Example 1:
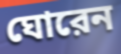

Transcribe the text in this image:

ঘোরেন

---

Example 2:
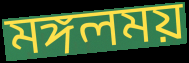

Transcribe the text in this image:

মঙ্গলময়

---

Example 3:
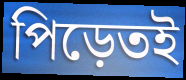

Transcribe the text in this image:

পিড়েতই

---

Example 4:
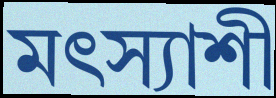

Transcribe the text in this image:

মৎস্যাশী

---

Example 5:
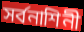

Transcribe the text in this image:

সর্বনাশিনী